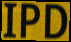
IPD